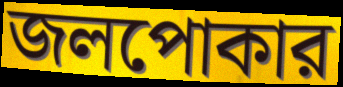
জলপোকার